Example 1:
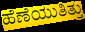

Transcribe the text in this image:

ಹೆಣೆಯುತಿತ್ತು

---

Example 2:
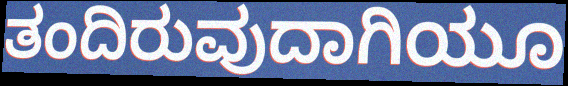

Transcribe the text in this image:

ತಂದಿರುವುದಾಗಿಯೂ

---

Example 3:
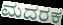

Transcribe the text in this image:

ಮದರಕ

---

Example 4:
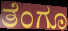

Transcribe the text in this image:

ತೆಂಗೂ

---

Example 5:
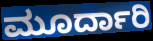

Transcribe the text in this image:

ಮೂರ್ದಾರಿ